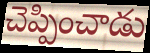
చెప్పించాడు